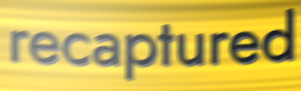
recaptured